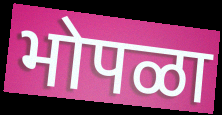
भोपळा